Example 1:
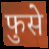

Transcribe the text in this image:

फुसे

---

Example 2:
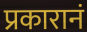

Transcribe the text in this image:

प्रकारानं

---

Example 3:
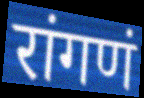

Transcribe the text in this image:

रांगणं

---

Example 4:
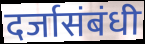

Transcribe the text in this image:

दर्जासंबंधी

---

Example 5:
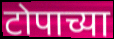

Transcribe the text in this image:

टोपाच्या